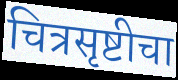
चित्रसृष्टीचा